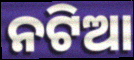
ନଟିଆ